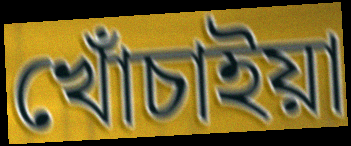
খোঁচাইয়া